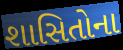
શાસિતોના